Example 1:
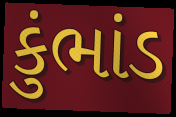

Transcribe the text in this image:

કુંભાંડ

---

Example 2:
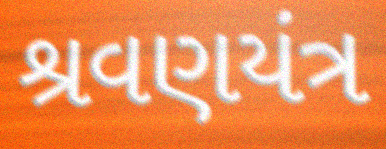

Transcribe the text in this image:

શ્રવણયંત્ર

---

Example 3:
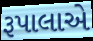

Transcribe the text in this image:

રૂપાલાએ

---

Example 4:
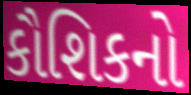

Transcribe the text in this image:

કૌશિકનો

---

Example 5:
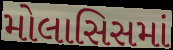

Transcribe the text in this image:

મોલાસિસમાં